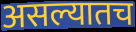
असल्यातच